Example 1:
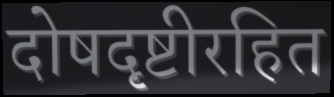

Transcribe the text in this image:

दोषदृष्टीरहित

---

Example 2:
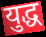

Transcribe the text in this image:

युद्ध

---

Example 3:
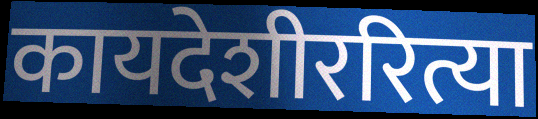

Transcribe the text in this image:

कायदेशीररित्या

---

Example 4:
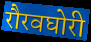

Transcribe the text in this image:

रौरवघोरी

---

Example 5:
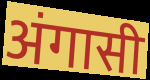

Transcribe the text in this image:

अंगासी